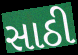
સાઠી